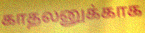
காதலனுக்காக